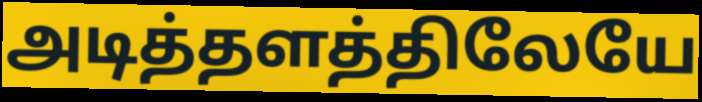
அடித்தளத்திலேயே